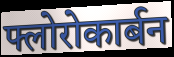
फ्लोरोकार्बन